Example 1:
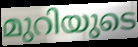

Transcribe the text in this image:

മുറിയുടെ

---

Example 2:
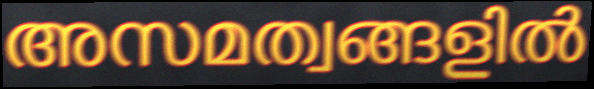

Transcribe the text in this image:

അസമത്വങ്ങളിൽ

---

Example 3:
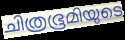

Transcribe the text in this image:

ചിത്രഭൂമിയുടെ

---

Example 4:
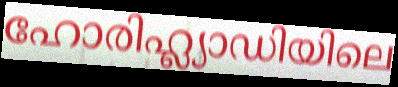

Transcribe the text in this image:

ഹോരിഹ്ല്യാഡിയിലെ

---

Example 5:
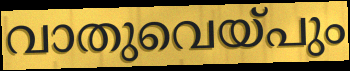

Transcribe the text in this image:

വാതുവെയ്പും